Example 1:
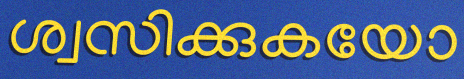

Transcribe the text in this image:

ശ്വസിക്കുകയോ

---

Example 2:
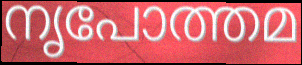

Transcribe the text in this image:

നൃപോത്തമ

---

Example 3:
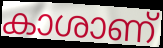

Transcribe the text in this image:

കാശാണ്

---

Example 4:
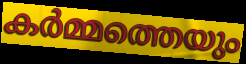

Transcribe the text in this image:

കർമ്മത്തെയും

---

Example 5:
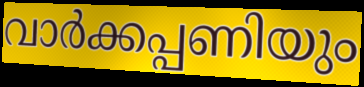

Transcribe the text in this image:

വാർക്കപ്പണിയും